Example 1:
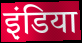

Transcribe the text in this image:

इ़ंडिया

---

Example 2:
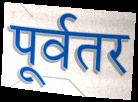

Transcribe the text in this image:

पूर्वतर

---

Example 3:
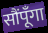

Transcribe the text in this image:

सौंपूँगा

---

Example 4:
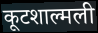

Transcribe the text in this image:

कूटशाल्मली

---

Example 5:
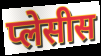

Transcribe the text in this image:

प्लेसीस